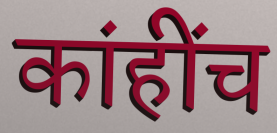
कांहींच